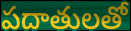
పదాతులతో